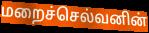
மறைச்செல்வனின்